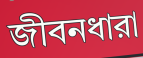
জীবনধারা